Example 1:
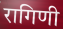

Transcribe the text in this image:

रागिणी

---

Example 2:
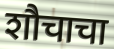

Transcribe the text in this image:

शौचाचा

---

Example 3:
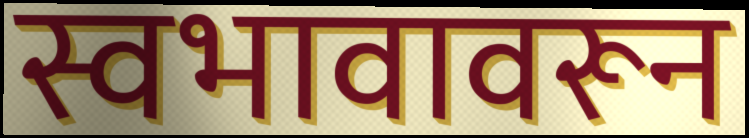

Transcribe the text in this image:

स्वभावावरून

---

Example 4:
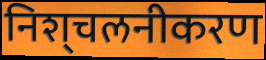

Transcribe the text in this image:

निश्चलनीकरण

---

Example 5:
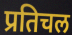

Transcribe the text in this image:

प्रतिचल